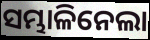
ସମ୍ଭାଳିନେଲା